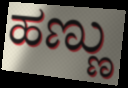
ಹಣ್ಣು